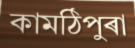
কামঠিপুৰা